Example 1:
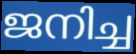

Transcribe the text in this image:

ജനിച്ച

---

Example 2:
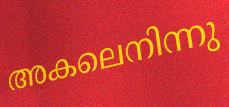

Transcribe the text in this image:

അകലെനിന്നു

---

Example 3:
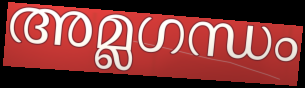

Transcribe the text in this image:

അമ്ലഗന്ധം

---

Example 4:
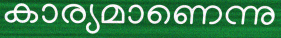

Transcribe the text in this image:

കാര്യമാണെന്നു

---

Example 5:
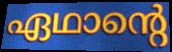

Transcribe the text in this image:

ഏഥാന്റെ